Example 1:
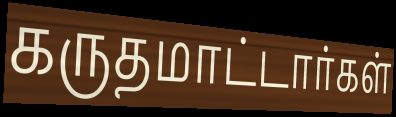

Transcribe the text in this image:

கருதமாட்டார்கள்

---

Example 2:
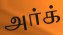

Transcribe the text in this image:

அர்க்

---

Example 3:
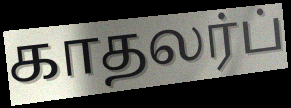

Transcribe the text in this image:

காதலர்ப்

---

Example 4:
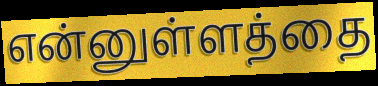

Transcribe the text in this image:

என்னுள்ளத்தை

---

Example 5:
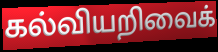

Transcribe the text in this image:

கல்வியறிவைக்